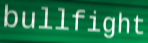
bullfight